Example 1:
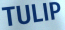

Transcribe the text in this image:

TULIP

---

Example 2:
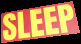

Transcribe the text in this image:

SLEEP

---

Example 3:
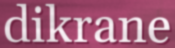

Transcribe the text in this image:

dikrane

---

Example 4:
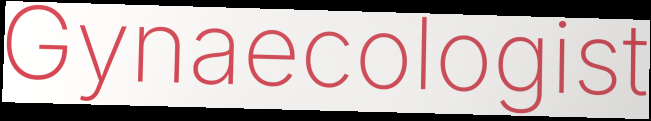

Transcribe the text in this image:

Gynaecologist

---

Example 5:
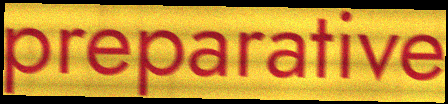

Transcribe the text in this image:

preparative